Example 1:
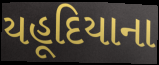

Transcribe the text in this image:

યહૂદિયાના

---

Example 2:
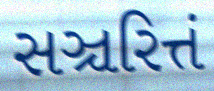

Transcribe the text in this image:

સઞ્ચરિત્તં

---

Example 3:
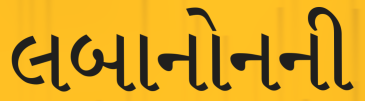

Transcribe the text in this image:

લબાનોનની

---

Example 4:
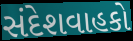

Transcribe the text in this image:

સંદેશવાહકો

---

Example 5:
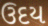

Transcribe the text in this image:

ઉદય